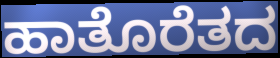
ಹಾತೊರೆತದ